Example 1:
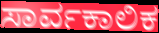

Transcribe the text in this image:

ಸಾರ್ವಕಾಲಿಕ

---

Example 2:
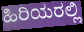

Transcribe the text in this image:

ಹಿರಿಯರಲ್ಲಿ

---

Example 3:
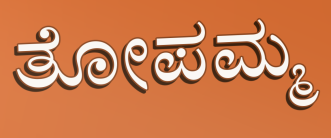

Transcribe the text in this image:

ತೋಪಮ್ಮ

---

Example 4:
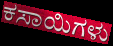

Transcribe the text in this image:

ಕಸಾಯಿಗಳು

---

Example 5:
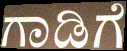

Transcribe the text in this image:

ಗಾಡಿಗೆ